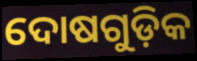
ଦୋଷଗୁଡ଼ିକ